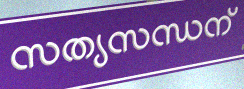
സത്യസന്ധന്